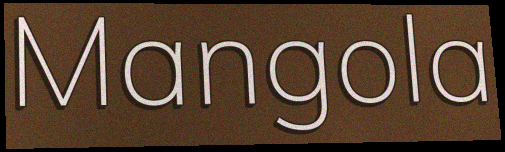
Mangola